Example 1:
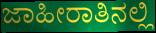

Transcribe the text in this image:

ಜಾಹೀರಾತಿನಲ್ಲಿ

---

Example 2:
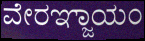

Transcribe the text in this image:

ವೇರಞ್ಜಾಯಂ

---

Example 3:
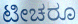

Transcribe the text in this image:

ಟೀಚರೂ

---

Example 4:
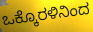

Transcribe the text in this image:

ಒಕ್ಕೊರಳಿನಿಂದ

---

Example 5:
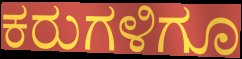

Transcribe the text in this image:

ಕರುಗಳಿಗೂ